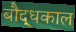
बौद्धकाल